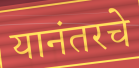
यानंतरचे